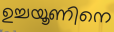
ഉച്ചയൂണിനെ